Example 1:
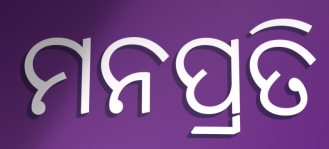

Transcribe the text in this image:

ମନପ୍ରତି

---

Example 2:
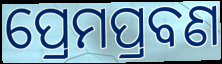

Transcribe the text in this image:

ପ୍ରେମପ୍ରବଣ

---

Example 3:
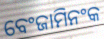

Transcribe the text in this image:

ବେଂଜାମିନଂକ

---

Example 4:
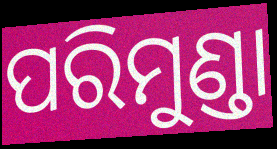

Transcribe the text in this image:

ପରିମୁଣ୍ଡା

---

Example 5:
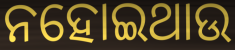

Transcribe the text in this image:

ନହୋଇଥାଉ